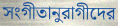
সংগীতানুরাগীদের